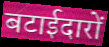
बटाईदारों